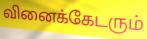
வினைக்கேடரும்